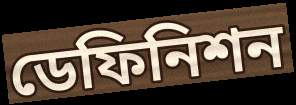
ডেফিনিশন